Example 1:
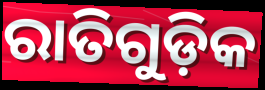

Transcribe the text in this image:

ରାତିଗୁଡ଼ିକ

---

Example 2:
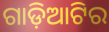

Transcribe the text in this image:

ଗାଡ଼ିଆଟିର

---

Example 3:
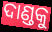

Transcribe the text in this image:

ଦାଣ୍ଡକୁ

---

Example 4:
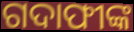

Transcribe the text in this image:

ଗଦାଫୀଙ୍କ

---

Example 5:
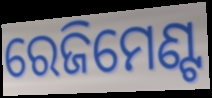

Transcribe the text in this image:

ରେଜିମେଣ୍ଟ